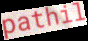
pathil